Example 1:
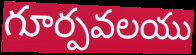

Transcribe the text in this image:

గూర్పవలయు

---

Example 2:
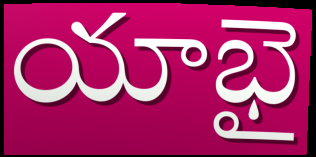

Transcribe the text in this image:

యాభై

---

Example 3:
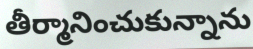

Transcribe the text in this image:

తీర్మానించుకున్నాను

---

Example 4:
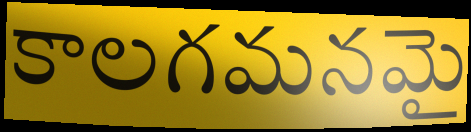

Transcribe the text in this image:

కాలగమనమై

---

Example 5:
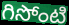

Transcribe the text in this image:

గిసోంటి